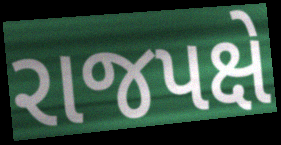
રાજપક્ષે